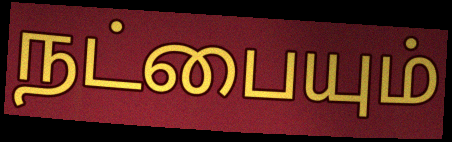
நட்பையும்